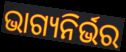
ଭାଗ୍ୟନିର୍ଭର